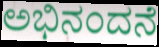
ಅಭಿನಂದನೆ